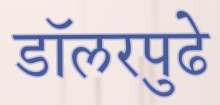
डॉलरपुढे